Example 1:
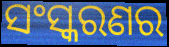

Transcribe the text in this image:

ସଂସ୍କରଣର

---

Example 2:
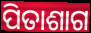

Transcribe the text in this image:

ପିତାଶାଗ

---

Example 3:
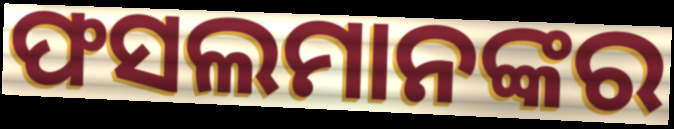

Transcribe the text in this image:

ଫସଲମାନଙ୍କର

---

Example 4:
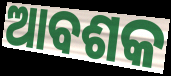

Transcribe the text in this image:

ଆବଶକ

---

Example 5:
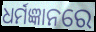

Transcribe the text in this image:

ଧର୍ମଜ୍ଞାନରେ